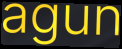
agun